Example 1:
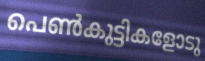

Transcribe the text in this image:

പെൺകുട്ടികളോടു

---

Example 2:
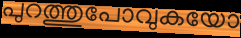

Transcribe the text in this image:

പുറത്തുപോവുകയോ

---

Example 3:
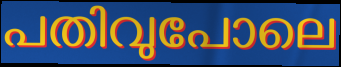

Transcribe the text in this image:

പതിവുപോലെ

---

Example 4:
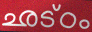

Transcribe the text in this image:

ഛട്ഠം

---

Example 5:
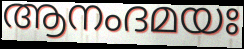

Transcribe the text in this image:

ആനംദമയഃ